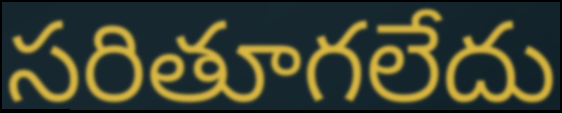
సరితూగలేదు